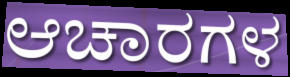
ಆಚಾರಗಳ